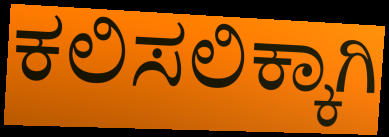
ಕಲಿಸಲಿಕ್ಕಾಗಿ